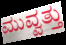
ಮುವ್ವತ್ತು